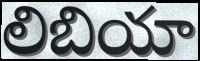
లిబియా